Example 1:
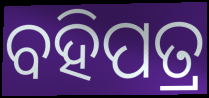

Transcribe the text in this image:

ବହିପତ୍ର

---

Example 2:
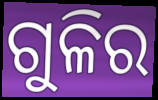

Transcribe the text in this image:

ଗୁଳିର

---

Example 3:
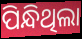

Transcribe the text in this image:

ପିନ୍ଧିଥିଲା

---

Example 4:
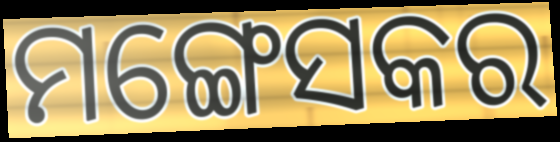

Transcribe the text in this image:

ମଙ୍ଗେସକର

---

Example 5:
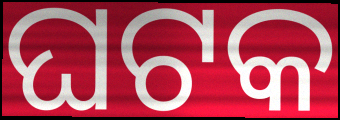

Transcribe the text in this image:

ଘଟକ